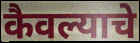
कैवल्याचे